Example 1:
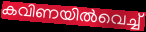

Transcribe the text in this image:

കവിണയിൽവെച്ച്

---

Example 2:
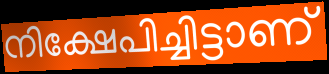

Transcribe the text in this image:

നിക്ഷേപിച്ചിട്ടാണ്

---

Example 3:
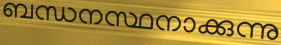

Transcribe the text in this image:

ബന്ധനസ്ഥനാക്കുന്നു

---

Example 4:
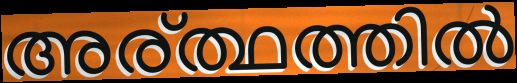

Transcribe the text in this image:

അര്ത്ഥത്തിൽ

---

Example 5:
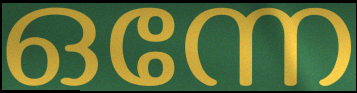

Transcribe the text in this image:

ഒന്നേ